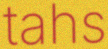
tahs